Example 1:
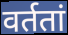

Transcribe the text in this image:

वर्ततां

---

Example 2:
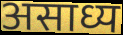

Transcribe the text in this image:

असाध्य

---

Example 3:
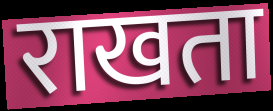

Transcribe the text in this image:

राखता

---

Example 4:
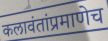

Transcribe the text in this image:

कलावंतांप्रमाणेच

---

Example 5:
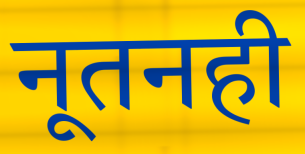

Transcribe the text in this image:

नूतनही